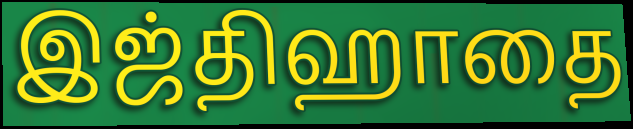
இஜ்திஹாதை